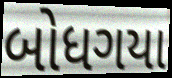
બોધગયા